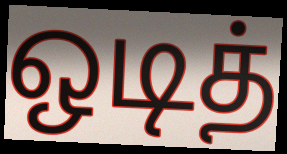
ஒடித்